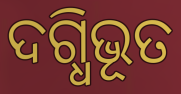
ଦଗ୍ଧିଭୂତ